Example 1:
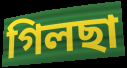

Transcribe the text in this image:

গিলছা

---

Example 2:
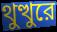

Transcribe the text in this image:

থুত্থুরে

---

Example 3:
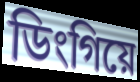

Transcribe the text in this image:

ডিংগিয়ে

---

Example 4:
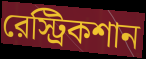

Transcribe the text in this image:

রেস্ট্রিকশান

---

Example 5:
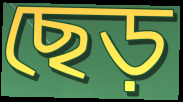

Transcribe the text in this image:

ছেড়